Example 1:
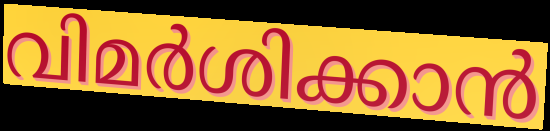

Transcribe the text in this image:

വിമർശിക്കാൻ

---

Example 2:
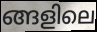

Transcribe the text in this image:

ങ്ങളിലെ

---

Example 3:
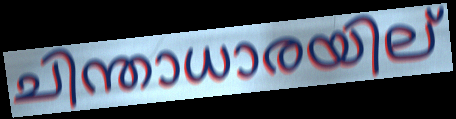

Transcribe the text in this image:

ചിന്താധാരയില്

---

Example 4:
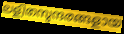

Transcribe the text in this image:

ലളിതസുന്ദരങ്ങളായ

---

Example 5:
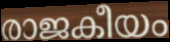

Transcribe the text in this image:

രാജകീയം